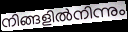
നിങ്ങളിൽനിന്നും